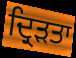
ਦ੍ਰਿੜਤਾ